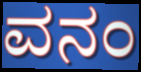
ವನಂ